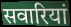
सवारियां